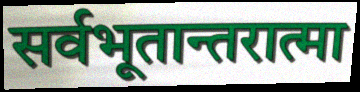
सर्वभूतान्तरात्मा